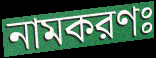
নামকরণঃ